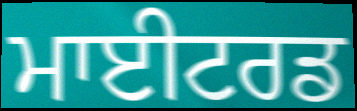
ਮਾਈਟਰਡ